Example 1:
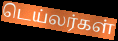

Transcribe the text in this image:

டெய்லர்கள்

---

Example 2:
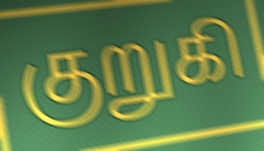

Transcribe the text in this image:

குறுகி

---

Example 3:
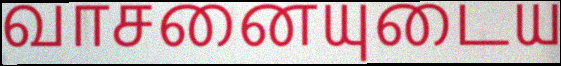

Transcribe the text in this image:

வாசனையுடைய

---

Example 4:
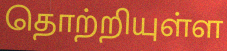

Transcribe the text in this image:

தொற்றியுள்ள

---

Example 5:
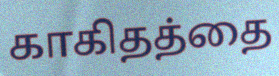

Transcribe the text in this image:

காகிதத்தை